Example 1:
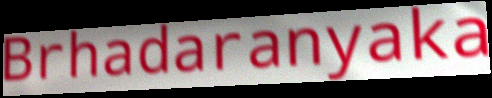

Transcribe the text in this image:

Brhadaranyaka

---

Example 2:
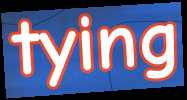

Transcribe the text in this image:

tying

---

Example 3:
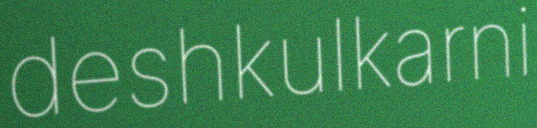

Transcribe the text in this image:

deshkulkarni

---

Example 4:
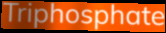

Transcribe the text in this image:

Triphosphate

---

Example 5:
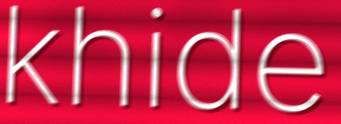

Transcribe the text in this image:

khide